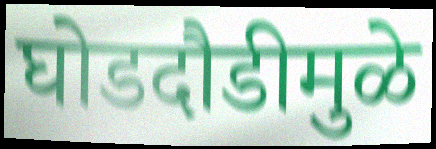
घोडदौडीमुळे